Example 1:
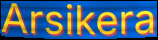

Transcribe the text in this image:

Arsikera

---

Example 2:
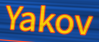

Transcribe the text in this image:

Yakov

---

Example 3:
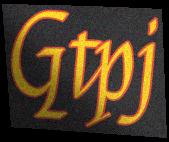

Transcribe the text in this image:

Gtpj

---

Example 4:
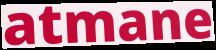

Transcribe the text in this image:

atmane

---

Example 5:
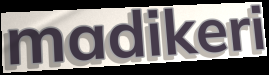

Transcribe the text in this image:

madikeri